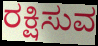
ರಕ್ಷಿಸುವ